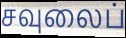
சவுலைப்